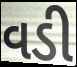
વડી